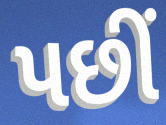
પછીં